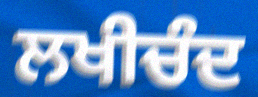
ਲਖੀਚੰਦ